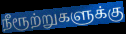
நீரூற்றுகளுக்கு